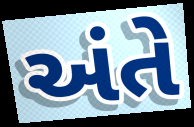
અંતે